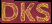
DKS